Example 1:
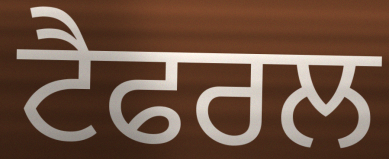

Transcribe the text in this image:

ਟੈਫਰਲ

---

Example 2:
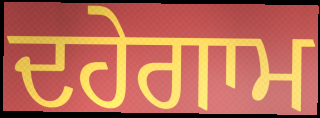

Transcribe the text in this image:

ਦਹੇਗਾਮ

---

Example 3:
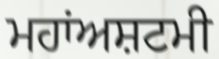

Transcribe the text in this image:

ਮਹਾਂਅਸ਼ਟਮੀ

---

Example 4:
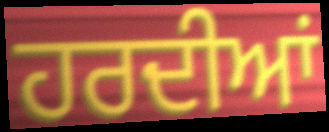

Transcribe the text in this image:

ਹਰਦੀਆਂ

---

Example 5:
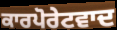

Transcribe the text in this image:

ਕਾਰਪੋਰੇਟਵਾਦ